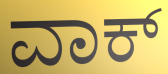
ವಾಕ್